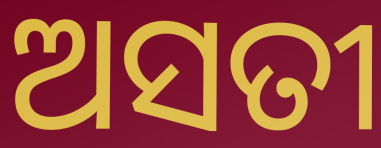
ଅସତୀ